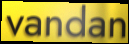
vandan